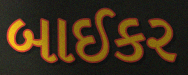
બાઈકર